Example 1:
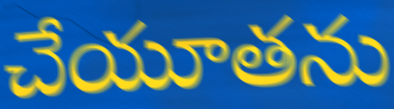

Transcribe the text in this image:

చేయూతను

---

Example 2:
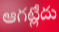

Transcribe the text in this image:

ఆగట్లేదు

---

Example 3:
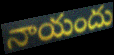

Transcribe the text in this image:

నాయందు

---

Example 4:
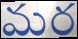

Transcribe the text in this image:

మర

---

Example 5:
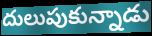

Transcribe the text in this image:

దులుపుకున్నాడు